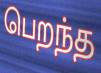
பெறந்த